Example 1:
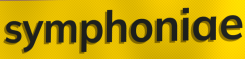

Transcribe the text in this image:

symphoniae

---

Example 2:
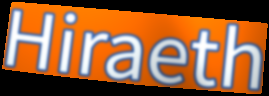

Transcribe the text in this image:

Hiraeth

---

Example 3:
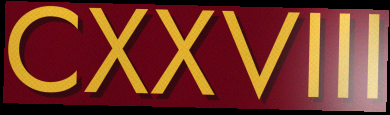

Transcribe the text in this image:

CXXVIII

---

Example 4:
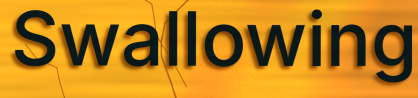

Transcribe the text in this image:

Swallowing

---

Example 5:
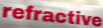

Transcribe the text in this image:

refractive